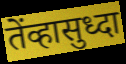
तेंव्हासुध्दा